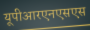
यूपीआरएनएसएस